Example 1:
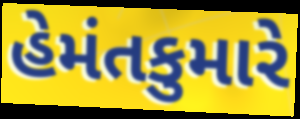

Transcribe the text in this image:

હેમંતકુમારે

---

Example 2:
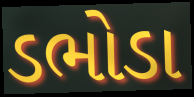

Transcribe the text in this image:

ડભોડા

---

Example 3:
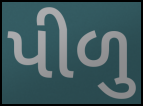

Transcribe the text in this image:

પીળુ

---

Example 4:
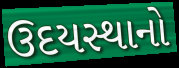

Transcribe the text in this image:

ઉદયસ્થાનો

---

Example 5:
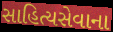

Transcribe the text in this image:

સાહિત્યસેવાના